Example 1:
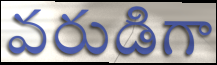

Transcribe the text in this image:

వరుడిగా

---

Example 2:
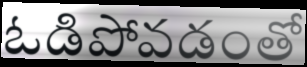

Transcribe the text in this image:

ఓడిపోవడంతో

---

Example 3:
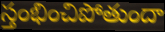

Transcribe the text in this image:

స్తంభించిపోతుందా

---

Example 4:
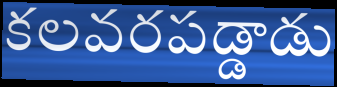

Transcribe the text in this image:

కలవరపడ్డాడు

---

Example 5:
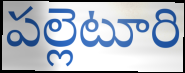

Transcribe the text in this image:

పల్లెటూరి